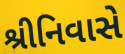
શ્રીનિવાસે